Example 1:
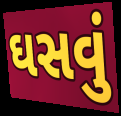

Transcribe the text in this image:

ઘસવું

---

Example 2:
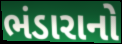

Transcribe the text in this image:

ભંડારાનો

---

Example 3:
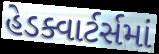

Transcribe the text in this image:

હેડક્વાર્ટર્સમાં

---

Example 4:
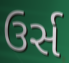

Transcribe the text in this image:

ઉર્સ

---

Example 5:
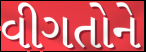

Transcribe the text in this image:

વીગતોને